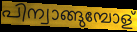
പിന്വാങ്ങുമ്പോള്